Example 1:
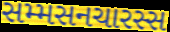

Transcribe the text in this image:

સમ્મસનચારસ્સ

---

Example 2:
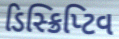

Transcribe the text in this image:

ડિસ્ક્રિપ્ટિવ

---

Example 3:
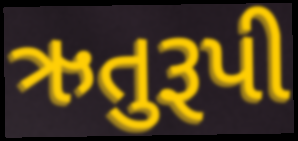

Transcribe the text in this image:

ઋતુરૂપી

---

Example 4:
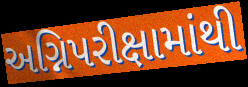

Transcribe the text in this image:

અગ્નિપરીક્ષામાંથી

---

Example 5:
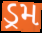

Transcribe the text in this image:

ડ્રમ